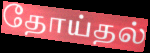
தோய்தல்